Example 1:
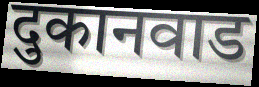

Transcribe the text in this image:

दुकानवाड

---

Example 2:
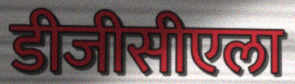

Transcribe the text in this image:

डीजीसीएला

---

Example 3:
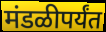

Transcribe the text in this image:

मंडळीपर्यंत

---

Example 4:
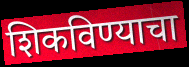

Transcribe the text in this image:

शिकविण्याचा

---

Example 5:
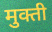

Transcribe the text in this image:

मुक्ती